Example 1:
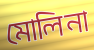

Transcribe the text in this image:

মোলিনা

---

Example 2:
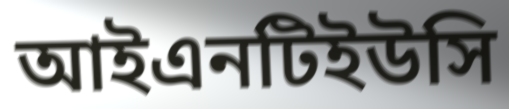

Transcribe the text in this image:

আইএনটিইউসি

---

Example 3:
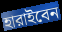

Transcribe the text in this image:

হারাইবেন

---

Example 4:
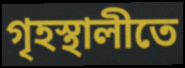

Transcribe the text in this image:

গৃহস্থালীতে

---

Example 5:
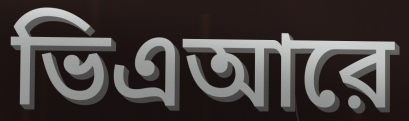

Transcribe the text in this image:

ভিএআরে